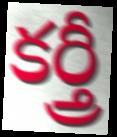
కర్త్రీ